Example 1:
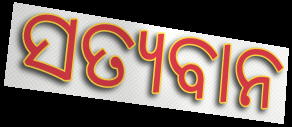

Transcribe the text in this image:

ସତ୍ୟବାନ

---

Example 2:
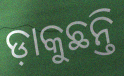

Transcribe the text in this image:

ଡ଼ାକୁଛନ୍ତି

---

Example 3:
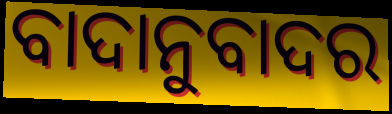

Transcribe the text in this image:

ବାଦାନୁବାଦର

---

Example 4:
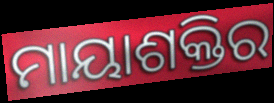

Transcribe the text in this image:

ମାୟାଶକ୍ତିର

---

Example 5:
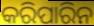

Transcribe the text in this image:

କରିପାରିନ